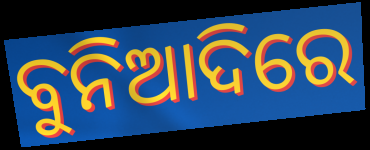
ବୁନିଆଦିରେ